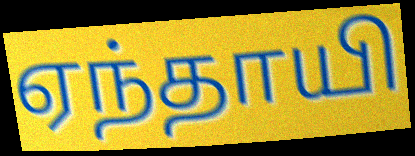
ஏந்தாயி